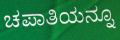
ಚಪಾತಿಯನ್ನೂ